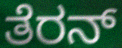
ತೆರನ್